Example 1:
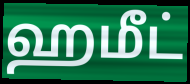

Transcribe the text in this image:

ஹமீட்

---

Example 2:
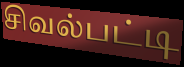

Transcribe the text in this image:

சிவல்பட்டி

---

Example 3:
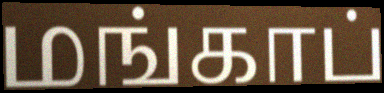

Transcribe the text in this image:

மங்காப்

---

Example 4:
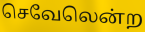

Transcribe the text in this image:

செவேலென்ற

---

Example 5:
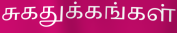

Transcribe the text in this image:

சுகதுக்கங்கள்